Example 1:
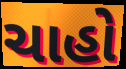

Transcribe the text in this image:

ચાહો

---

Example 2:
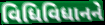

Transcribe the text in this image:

વિધિવિધાનને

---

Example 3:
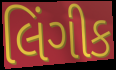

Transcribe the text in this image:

લિંગીક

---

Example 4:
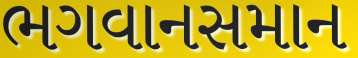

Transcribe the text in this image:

ભગવાનસમાન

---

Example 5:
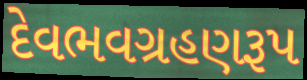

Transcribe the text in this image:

દેવભવગ્રહણરૂપ